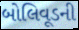
બોલિવૂડની